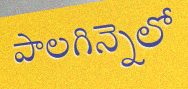
పాలగిన్నెలో